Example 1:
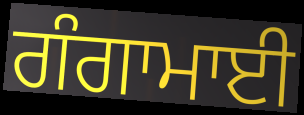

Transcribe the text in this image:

ਗੰਗਾਮਾਈ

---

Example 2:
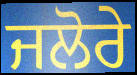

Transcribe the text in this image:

ਜਲੋਰੇ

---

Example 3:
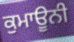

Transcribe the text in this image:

ਕੁਮਾਊਨੀ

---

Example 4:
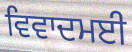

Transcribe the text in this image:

ਵਿਵਾਦਮਈ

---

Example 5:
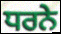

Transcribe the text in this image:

ਧਰਨੇ